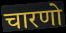
चारणो